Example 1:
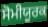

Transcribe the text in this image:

ਸੋਮੀਯੂਰਕ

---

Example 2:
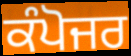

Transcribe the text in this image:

ਕੰਪੋਜਰ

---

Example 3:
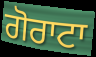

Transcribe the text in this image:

ਗੋਰਾਟਾ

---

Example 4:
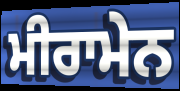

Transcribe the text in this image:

ਮੀਰਾਮੇਨ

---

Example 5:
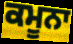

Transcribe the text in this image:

ਕਮੂਨਾ